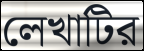
লেখাটির